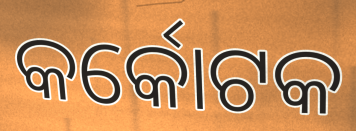
କର୍କୋଟକ